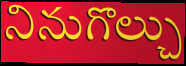
నినుగొల్చు